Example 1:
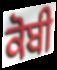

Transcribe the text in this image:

ਕੋਬੀ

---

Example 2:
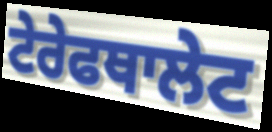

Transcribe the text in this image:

ਟੇਰੇਫਥਾਲੇਟ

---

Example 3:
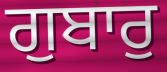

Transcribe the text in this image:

ਗੁਬਾਰੁ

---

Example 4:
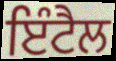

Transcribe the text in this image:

ਇੰਟੈਲ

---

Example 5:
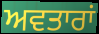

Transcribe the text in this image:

ਅਵਤਾਰਾਂ